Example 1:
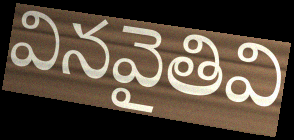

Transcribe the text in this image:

వినవైతివి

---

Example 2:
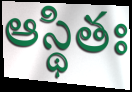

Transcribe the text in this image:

ఆస్థితః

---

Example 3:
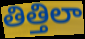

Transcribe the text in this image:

తిత్తిలా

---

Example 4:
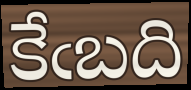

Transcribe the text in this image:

కేఁబది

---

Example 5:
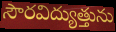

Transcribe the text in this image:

సౌరవిద్యుత్తును